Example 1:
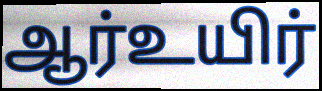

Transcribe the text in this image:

ஆர்உயிர்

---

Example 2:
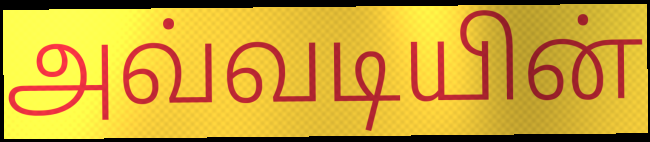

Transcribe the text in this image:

அவ்வடியின்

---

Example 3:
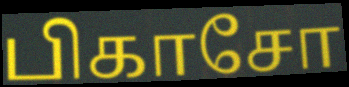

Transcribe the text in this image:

பிகாசோ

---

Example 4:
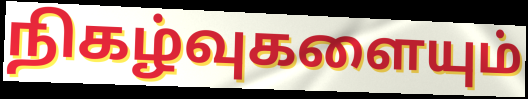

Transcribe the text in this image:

நிகழ்வுகளையும்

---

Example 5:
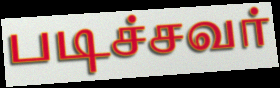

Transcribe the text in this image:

படிச்சவர்